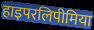
हाइपरलिपीमिया